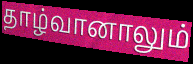
தாழ்வானாலும்